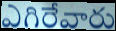
ఎగిరేవారు